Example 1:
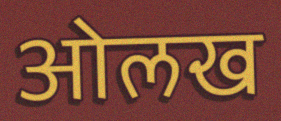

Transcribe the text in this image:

ओलख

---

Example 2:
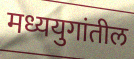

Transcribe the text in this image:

मध्ययुगांतील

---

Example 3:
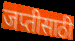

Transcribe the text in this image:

जप्तीसाठी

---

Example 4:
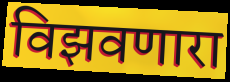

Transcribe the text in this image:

विझवणारा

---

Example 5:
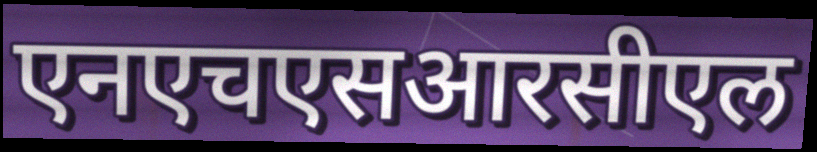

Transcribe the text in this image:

एनएचएसआरसीएल